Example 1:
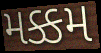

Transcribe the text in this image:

મક્કમ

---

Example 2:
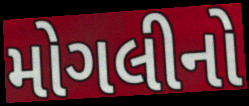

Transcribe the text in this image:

મોગલીનો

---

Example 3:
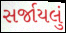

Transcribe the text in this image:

સર્જાયલું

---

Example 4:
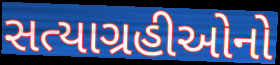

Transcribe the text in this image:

સત્યાગ્રહીઓનો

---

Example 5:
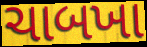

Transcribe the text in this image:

ચાબખા